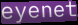
eyenet